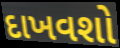
દાખવશો